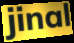
jinal